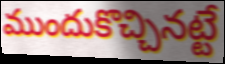
ముందుకొచ్చినట్టే